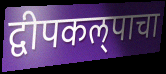
द्वीपकल्पाचा